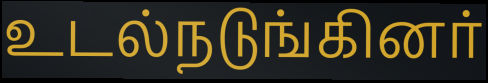
உடல்நடுங்கினர்